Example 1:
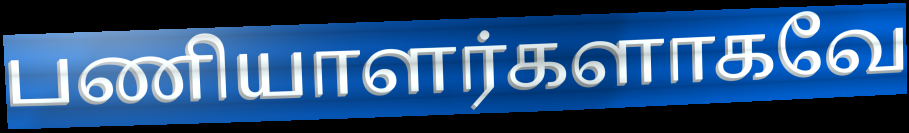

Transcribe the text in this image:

பணியாளர்களாகவே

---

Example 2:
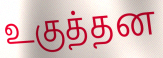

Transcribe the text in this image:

உகுத்தன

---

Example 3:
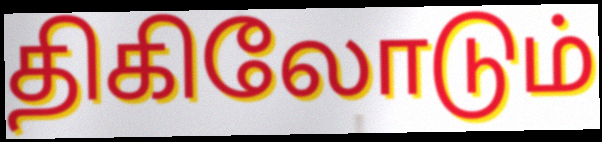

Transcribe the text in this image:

திகிலோடும்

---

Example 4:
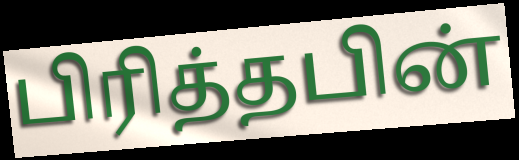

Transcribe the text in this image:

பிரித்தபின்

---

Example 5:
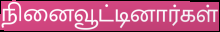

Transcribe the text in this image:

நினைவூட்டினார்கள்